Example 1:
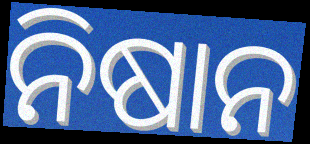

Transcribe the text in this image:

ନିଷାନ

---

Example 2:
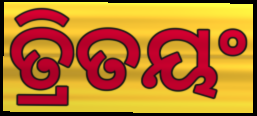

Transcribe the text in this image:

ତ୍ରିତୟଂ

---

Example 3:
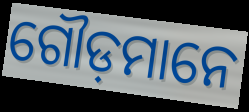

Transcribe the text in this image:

ଗୌଡ଼ମାନେ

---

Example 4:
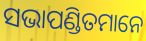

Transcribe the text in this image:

ସଭାପଣ୍ଡିତମାନେ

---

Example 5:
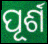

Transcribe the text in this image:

ପୂର୍ଶ